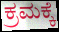
ಕ್ರಮಕ್ಕೆ